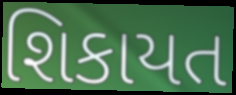
શિકાયત